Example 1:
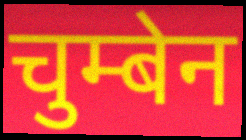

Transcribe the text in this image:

चुम्बेन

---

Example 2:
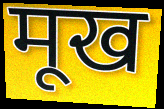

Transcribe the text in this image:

मूख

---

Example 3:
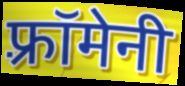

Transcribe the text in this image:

फ़्रॉमेनी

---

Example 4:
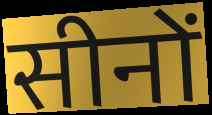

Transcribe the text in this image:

सीनों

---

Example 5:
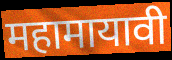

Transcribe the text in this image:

महामायावी